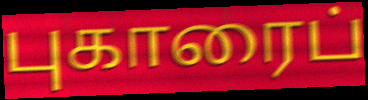
புகாரைப்